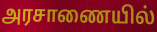
அரசாணையில்